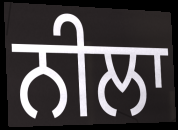
ਨੀਲਾ